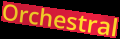
Orchestral